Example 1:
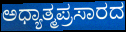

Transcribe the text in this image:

ಅಧ್ಯಾತ್ಮಪ್ರಸಾರದ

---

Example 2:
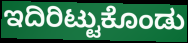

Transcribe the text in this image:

ಇದಿರಿಟ್ಟುಕೊಂಡು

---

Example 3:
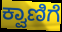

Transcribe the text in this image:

ಕ್ವಾಣಿಗೆ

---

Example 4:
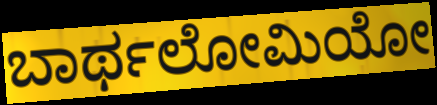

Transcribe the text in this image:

ಬಾರ್ಥಲೋಮಿಯೋ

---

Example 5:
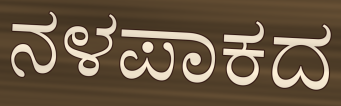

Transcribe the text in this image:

ನಳಪಾಕದ